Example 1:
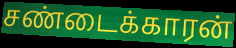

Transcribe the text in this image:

சண்டைக்காரன்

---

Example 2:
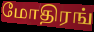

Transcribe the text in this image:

மோதிரங்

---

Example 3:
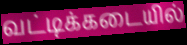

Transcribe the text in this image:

வட்டிக்கடையில்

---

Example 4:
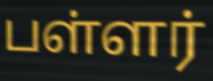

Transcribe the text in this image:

பள்ளர்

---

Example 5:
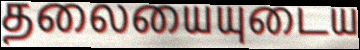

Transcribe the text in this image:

தலையையுடைய